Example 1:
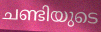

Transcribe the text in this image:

ചണ്ടിയുടെ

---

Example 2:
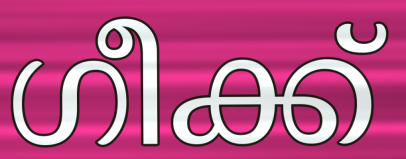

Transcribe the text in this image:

ഗീക്ക്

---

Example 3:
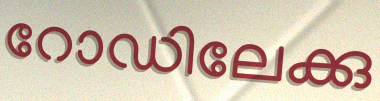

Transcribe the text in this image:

റോഡിലേക്കു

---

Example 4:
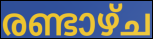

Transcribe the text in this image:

രണ്ടാഴ്ച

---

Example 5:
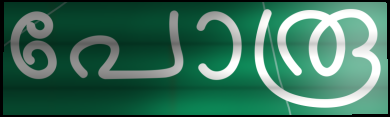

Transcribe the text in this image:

പോരൂ